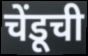
चेंडूची